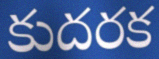
కుదరక